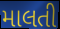
માલતી